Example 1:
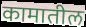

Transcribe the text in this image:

कामातील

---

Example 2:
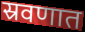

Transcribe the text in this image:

स्रवणात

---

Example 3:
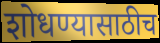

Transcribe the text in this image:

शोधण्यासाठीच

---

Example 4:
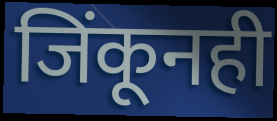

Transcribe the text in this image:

जिंकूनही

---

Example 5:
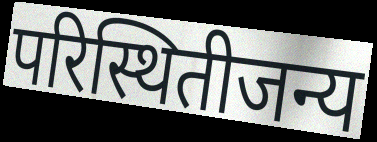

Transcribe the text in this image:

परिस्थितीजन्य